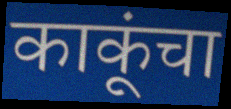
काकूंचा